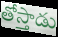
తోస్తాడు